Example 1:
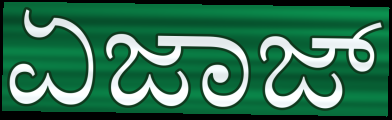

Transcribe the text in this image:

ಏಜಾಜ್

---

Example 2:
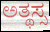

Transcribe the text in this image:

ಅತ್ಥಸ್ಸ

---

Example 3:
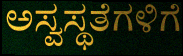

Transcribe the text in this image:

ಅಸ್ವಸ್ಥತೆಗಳಿಗೆ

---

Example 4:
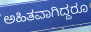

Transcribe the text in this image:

ಅಹಿತವಾಗಿದ್ದರೂ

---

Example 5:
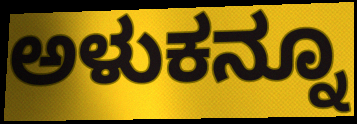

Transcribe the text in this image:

ಅಳುಕನ್ನೂ